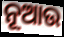
ନୂଆଉ